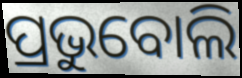
ପ୍ରଭୁବୋଲି